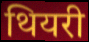
थियरी